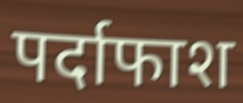
पर्दाफाश